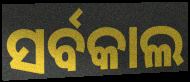
ସର୍ବକାଲ